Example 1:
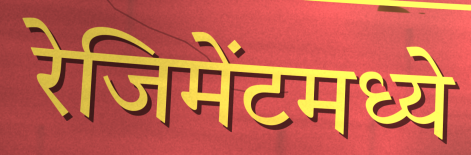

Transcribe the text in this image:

रेजिमेंटमध्ये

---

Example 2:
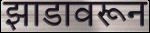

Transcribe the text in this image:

झाडावरून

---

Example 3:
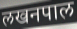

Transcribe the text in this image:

लखनपाल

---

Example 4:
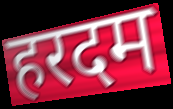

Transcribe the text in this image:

हरदम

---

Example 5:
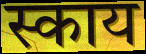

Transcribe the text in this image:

स्काय